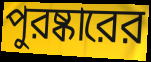
পুরষ্কারের